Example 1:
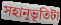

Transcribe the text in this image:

সহানুভূতিটা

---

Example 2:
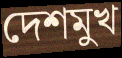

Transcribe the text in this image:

দেশমুখ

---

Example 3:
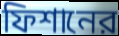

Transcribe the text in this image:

ফিশানের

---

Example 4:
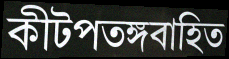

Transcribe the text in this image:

কীটপতঙ্গবাহিত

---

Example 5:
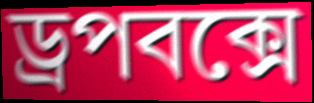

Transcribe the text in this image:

ড্রপবক্সে